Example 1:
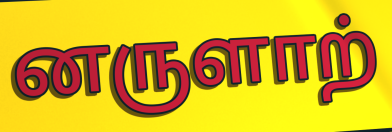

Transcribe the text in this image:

னருளாற்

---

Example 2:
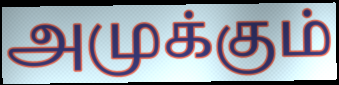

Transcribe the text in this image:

அமுக்கும்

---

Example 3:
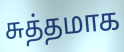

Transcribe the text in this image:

சுத்தமாக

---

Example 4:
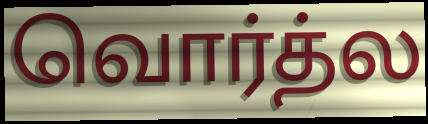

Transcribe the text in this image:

வொர்த்ல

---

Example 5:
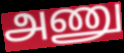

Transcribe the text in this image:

அணு